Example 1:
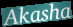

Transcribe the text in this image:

Akasha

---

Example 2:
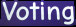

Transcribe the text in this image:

Voting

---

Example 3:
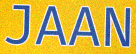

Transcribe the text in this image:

JAAN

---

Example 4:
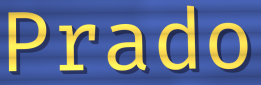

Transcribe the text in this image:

Prado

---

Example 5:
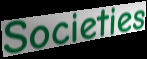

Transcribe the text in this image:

Societies